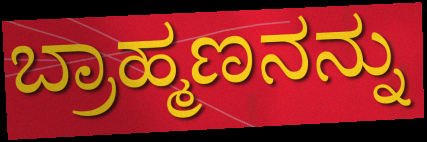
ಬ್ರಾಹ್ಮಣನನ್ನು